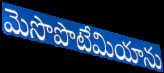
మెసొపొటేమియాను